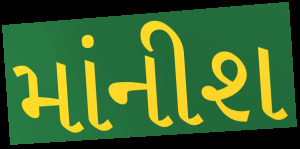
માંનીશ